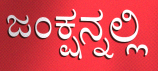
ಜಂಕ್ಷನ್ನಲ್ಲಿ